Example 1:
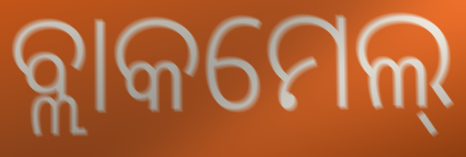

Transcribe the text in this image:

ବ୍ଲାକମେଲ୍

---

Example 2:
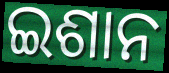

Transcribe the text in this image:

ଇଶାନ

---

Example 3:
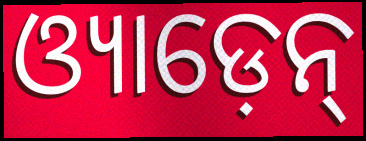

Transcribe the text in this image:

ଓ୍ୟାଡ଼େନ୍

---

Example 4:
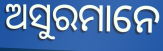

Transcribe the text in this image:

ଅସୁରମାନେ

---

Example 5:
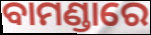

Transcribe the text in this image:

ବାମଣ୍ଡାରେ